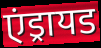
एंड्रायड